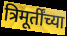
त्रिमूर्तींच्या